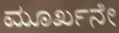
ಮೂರ್ಖನೇ